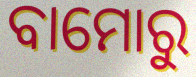
ବାମୋରୁ